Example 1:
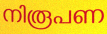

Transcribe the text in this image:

നിരൂപണ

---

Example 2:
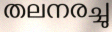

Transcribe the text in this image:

തലനരച്ചു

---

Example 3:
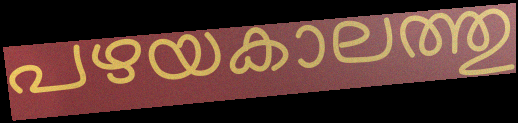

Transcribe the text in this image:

പഴയകാലത്തു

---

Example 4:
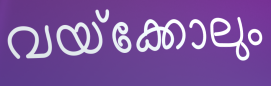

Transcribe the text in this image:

വയ്‌ക്കോലും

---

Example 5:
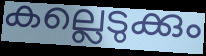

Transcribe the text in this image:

കല്ലെടുക്കും